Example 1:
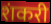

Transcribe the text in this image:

शंकरी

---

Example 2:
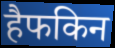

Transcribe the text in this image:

हैफकिन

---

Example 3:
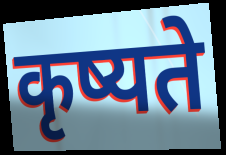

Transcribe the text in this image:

कृष्यते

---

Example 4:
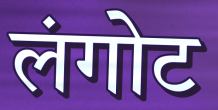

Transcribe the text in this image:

लंगोट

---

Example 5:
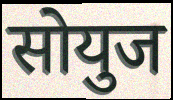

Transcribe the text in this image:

सोयुज